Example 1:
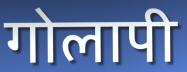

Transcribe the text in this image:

गोलापी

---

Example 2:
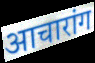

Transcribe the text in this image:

आचारांग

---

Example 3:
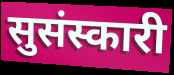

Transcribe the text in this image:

सुसंस्कारी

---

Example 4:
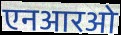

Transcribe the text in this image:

एनआरओ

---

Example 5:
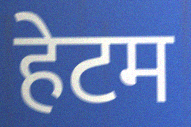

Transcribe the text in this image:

हेटम